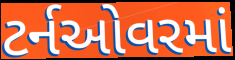
ટર્નઓવરમાં